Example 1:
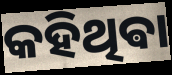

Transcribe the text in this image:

କହିଥିଵା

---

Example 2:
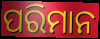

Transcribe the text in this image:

ପରିମାନ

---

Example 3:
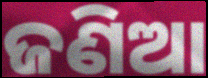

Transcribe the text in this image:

ଜଣିଆ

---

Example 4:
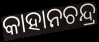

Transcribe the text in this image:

କାହାନଚନ୍ଦ୍ର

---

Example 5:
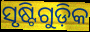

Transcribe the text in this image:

ସୃଷ୍ଟିଗୁଡ଼ିକ